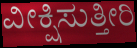
ವೀಕ್ಷಿಸುತ್ತೀರಿ